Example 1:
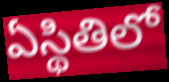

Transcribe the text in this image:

ఏస్థితిలో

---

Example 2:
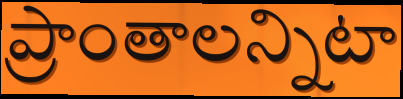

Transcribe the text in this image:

ప్రాంతాలన్నిటా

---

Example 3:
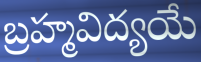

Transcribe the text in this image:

బ్రహ్మవిద్యయే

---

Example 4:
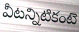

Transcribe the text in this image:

వీటన్నిటికంటె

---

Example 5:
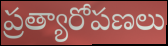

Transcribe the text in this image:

ప్రత్యారోపణలు